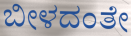
ಬೀಳದಂತೇ